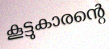
കൂട്ടുകാരന്റെ